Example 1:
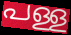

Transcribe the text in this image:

പള്ള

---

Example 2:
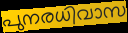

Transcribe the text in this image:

പുനരധിവാസ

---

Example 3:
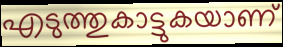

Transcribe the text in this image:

എടുത്തുകാട്ടുകയാണ്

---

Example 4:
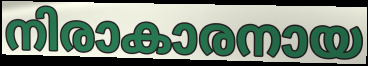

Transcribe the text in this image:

നിരാകാരനായ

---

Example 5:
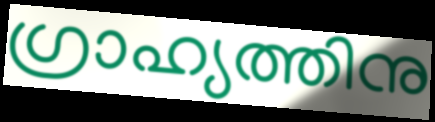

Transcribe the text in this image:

ഗ്രാഹ്യത്തിനു